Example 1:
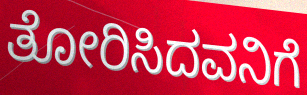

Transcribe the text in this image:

ತೋರಿಸಿದವನಿಗೆ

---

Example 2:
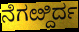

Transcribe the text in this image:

ನೆಗೞ್ದಿರ್ದ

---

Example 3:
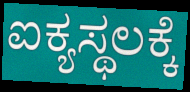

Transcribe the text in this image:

ಐಕ್ಯಸ್ಥಲಕ್ಕೆ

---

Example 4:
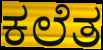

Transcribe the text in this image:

ಕಲೆತ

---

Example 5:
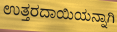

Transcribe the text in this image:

ಉತ್ತರದಾಯಿಯನ್ನಾಗಿ